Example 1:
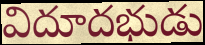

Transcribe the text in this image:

విదూదభుడు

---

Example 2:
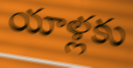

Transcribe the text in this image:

యాళ్లకు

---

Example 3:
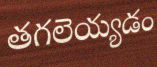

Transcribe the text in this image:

తగలెయ్యడం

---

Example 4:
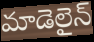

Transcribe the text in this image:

మాడెలైన్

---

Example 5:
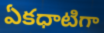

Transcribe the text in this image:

ఏకధాటిగా